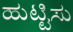
ಹುಟ್ಟಿಸು